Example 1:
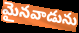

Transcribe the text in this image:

మైనవాడును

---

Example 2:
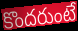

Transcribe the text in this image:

కొందరుంటే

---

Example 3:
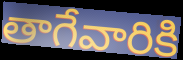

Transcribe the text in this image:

తాగేవారికి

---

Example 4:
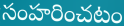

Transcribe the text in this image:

సంహరించటం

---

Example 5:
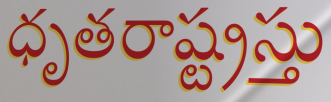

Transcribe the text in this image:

ధృతరాష్ట్రస్తు